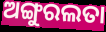
ଅଙ୍ଗୁରଲତା